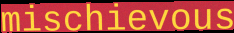
mischievous